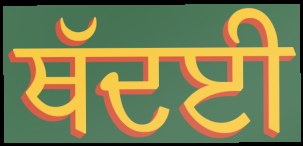
ਥੱਦਈ